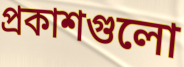
প্রকাশগুলো